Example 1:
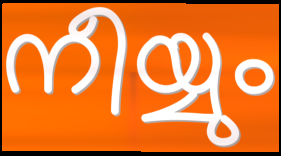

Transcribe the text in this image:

നീയ്യും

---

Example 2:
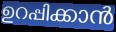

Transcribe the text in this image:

ഉറപ്പിക്കാൻ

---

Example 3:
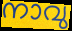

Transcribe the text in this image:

നാവു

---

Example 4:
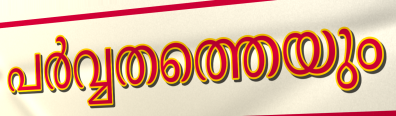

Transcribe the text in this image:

പർവ്വതത്തെയും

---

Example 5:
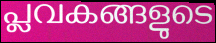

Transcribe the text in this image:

പ്ലവകങ്ങളുടെ